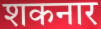
शकनार